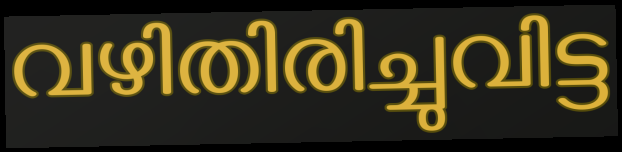
വഴിതിരിച്ചുവിട്ട